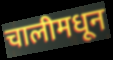
चालीमधून